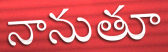
నానుతూ